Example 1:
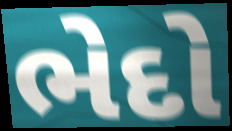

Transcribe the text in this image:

ભેદો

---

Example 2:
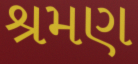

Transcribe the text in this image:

શ્રમણ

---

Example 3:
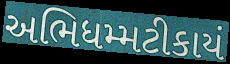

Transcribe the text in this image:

અભિધમ્મટીકાયં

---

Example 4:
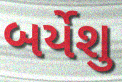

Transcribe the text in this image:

બર્યેશુ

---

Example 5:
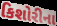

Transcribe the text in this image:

કિશોરીના